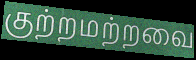
குற்றமற்றவை